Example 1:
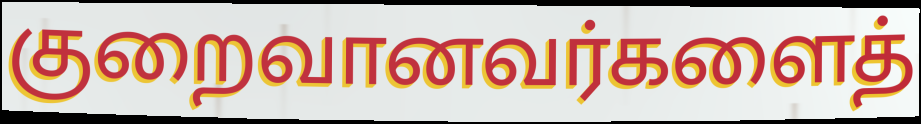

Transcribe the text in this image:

குறைவானவர்களைத்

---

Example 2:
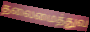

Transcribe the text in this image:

தலைமைத்துவ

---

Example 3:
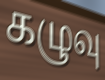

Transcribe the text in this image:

கழுவு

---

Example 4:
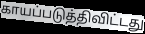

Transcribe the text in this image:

காயப்படுத்திவிட்டது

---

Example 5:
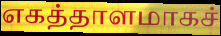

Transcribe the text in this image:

எகத்தாளமாகச்